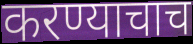
करण्याचाच